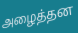
அழைத்தன